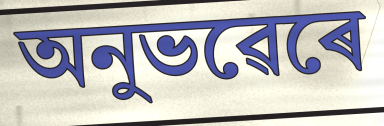
অনুভৱেৰে